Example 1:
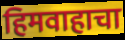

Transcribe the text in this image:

हिमवाहाचा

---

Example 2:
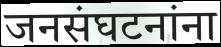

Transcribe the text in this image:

जनसंघटनांना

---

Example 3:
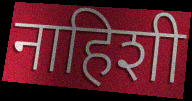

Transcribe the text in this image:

नाहिशी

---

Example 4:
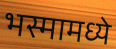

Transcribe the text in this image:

भस्मामध्ये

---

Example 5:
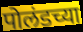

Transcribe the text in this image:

पोलंडच्या